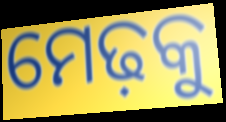
ମେଢ଼କୁ